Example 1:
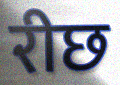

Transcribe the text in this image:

रीछ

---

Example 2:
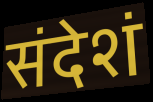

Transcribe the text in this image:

संदेशं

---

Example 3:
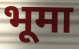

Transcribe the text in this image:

भूमा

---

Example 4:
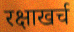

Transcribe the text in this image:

रक्षाखर्च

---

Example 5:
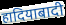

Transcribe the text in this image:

हादियाबादी